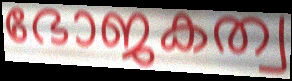
ഭോജകത്വ